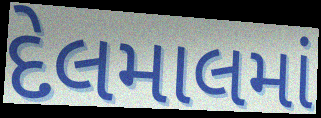
દેલમાલમાં